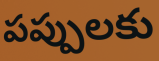
పప్పులకు